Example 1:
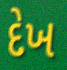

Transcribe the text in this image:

દેખ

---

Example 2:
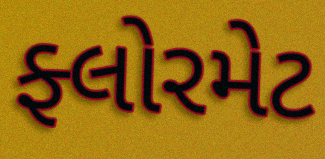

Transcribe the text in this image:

ફ્લોરમેટ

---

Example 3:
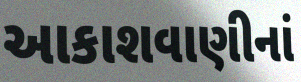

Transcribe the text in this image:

આકાશવાણીનાં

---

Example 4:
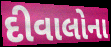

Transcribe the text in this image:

દીવાલોના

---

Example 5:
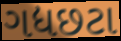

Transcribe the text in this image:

ગદ્યછટા